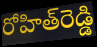
రోహిత్‌రెడ్డి